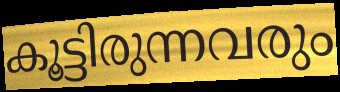
കൂട്ടിരുന്നവരും